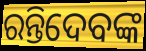
ରନ୍ତିଦେବଙ୍କ